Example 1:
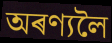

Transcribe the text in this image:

অৰণ্যলৈ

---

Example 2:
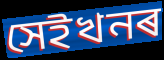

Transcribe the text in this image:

সেইখনৰ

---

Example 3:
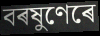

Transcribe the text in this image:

বৰষুণেৰে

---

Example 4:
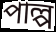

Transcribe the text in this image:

পাল্প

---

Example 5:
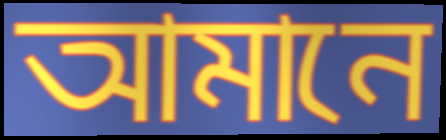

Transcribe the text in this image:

আমানে